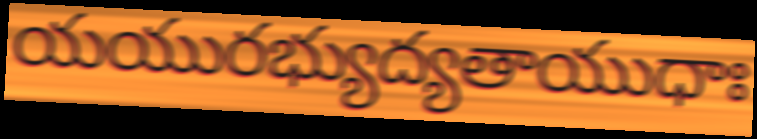
యయురభ్యుద్యతాయుధాః